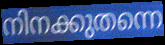
നിനക്കുതന്നെ